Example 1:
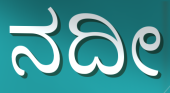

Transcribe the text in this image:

ನದೀ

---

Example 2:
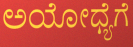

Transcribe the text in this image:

ಅಯೋಧ್ಯೆಗೆ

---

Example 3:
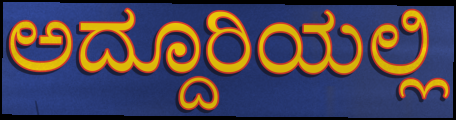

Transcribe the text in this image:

ಅದ್ದೂರಿಯಲ್ಲಿ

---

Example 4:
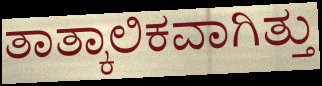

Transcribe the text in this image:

ತಾತ್ಕಾಲಿಕವಾಗಿತ್ತು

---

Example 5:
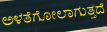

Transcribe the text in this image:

ಅಳತೆಗೋಲಾಗುತ್ತದೆ